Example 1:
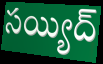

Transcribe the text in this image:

సయ్యిద్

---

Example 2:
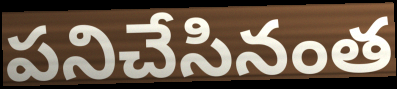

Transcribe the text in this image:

పనిచేసినంత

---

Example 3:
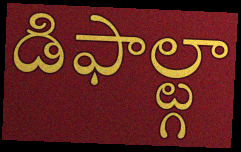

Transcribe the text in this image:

డిఫాల్ట్గా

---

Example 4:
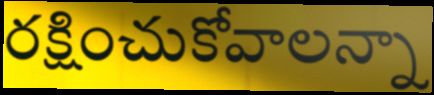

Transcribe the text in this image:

రక్షించుకోవాలన్నా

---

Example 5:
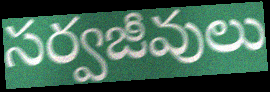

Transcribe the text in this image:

సర్వజీవులు